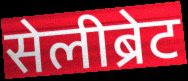
सेलीब्रेट